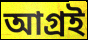
আগ্রই